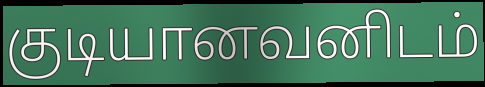
குடியானவனிடம்